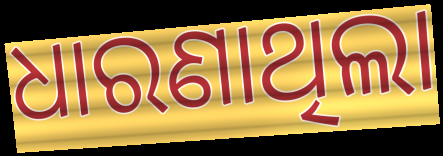
ଧାରଣାଥିଲା